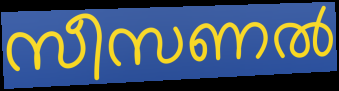
സീസണൽ